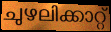
ചുഴലിക്കാറ്റ്